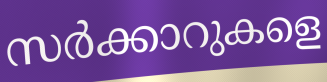
സർക്കാറുകളെ